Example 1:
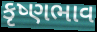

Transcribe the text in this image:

કૃષ્ણભાવ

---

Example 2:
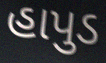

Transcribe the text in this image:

હાપુડ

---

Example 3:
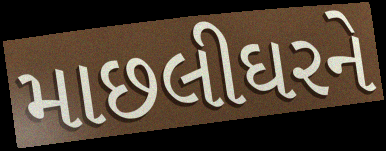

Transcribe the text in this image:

માછલીઘરને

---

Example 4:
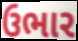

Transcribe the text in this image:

ઉભાર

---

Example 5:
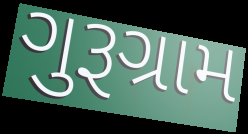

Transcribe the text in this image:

ગુરૂગ્રામ